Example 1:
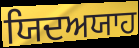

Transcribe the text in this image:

ਯਿਦਅਯਾਹ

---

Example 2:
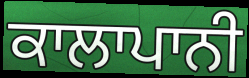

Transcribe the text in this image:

ਕਾਲਾਪਾਨੀ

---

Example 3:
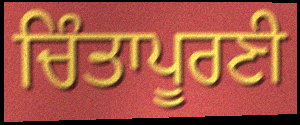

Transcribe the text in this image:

ਚਿੰਤਾਪੂਰਣੀ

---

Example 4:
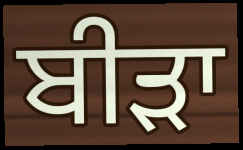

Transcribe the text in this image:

ਬੀੜਾ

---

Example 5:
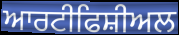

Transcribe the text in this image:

ਆਰਟੀਫਿਸ਼ੀਅਲ